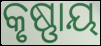
କୃଷ୍ଣାୟ